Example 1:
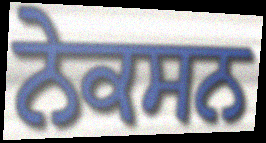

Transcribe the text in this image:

ਨੇਕਸਨ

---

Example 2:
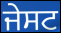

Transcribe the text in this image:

ਜੇਸਟ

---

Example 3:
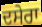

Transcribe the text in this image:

ਦਸੇਰਾ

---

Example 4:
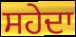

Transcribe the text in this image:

ਸਹੇਦਾ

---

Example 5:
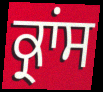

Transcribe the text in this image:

ਕ੍ਰਾਂਸ